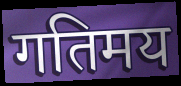
गतिमय